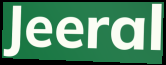
Jeeral